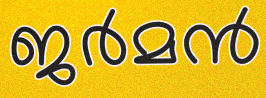
ജർമൻ